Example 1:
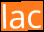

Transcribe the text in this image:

lac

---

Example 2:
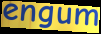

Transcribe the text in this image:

engum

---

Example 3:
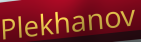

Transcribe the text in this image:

Plekhanov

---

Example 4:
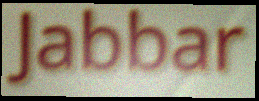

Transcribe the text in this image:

Jabbar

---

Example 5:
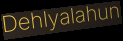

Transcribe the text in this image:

Dehlyalahun